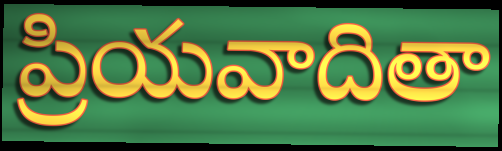
ప్రియవాదితా